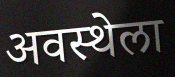
अवस्थेला